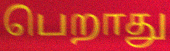
பெறாது